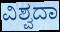
ವಿಶ್ವದಾ